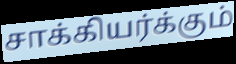
சாக்கியர்க்கும்